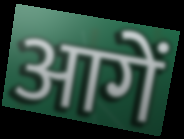
आगें